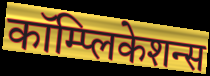
कॉम्प्लिकेशन्स